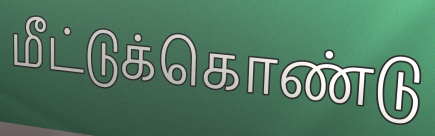
மீட்டுக்கொண்டு